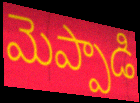
మెప్పాడి